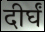
दीर्घं